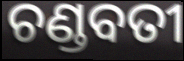
ଚଣ୍ଡବତୀ